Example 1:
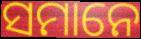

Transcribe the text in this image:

ସମାନେ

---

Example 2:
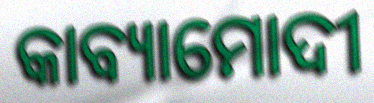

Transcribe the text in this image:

କାବ୍ୟାମୋଦୀ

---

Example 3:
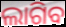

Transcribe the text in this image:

ଲାଗିବ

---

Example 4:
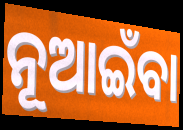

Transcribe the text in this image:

ନୂଆଇଁବା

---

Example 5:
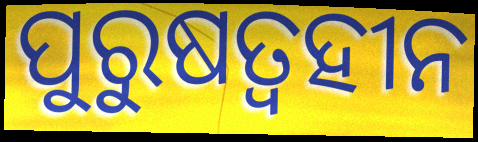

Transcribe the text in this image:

ପୁରୁଷତ୍ୱହୀନ